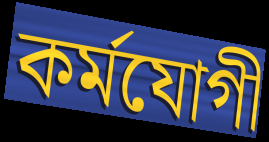
কর্মযোগী